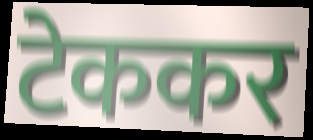
टेककर